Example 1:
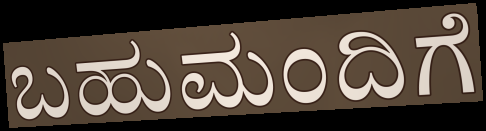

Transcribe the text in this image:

ಬಹುಮಂದಿಗೆ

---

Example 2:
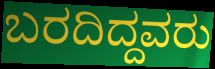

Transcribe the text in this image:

ಬರದಿದ್ದವರು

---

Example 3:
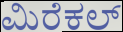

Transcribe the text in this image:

ಮಿರೆಕಲ್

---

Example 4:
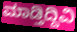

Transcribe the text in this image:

ಮಾಡ್ತಿದ್ದಿವಿ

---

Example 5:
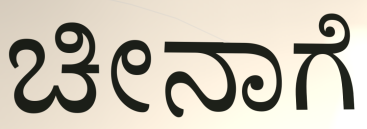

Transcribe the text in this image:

ಚೀನಾಗೆ